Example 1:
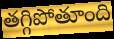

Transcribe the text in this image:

తగ్గిపోతూంది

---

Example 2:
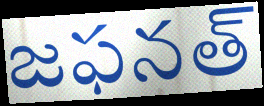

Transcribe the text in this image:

జఫనత్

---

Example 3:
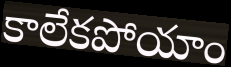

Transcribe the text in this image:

కాలేకపోయాం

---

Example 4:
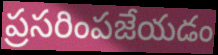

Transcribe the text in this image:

ప్రసరింపజేయడం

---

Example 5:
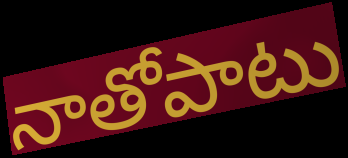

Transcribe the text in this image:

నాతోపాటు